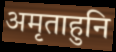
अमृताहुनि